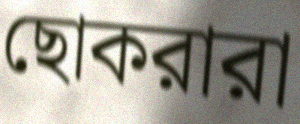
ছোকরারা